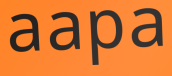
aapa